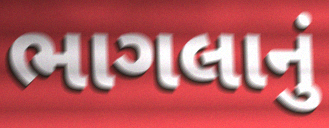
ભાગલાનું